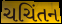
ચચિંતન